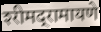
श्रीमद्‌रामायणे